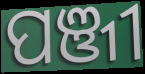
ପଞ୍ଜୀ